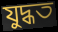
যুদ্ধত